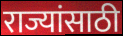
राज्यांसाठी